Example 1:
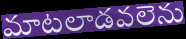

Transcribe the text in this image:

మాటలాడవలెను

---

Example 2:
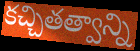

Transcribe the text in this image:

కచ్చితత్వాన్ని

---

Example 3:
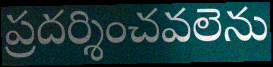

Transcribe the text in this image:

ప్రదర్శించవలెను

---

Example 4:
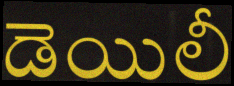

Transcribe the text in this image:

డెయిలీ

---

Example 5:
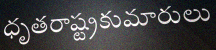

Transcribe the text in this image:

ధృతరాష్ట్రకుమారులు